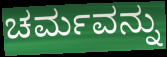
ಚರ್ಮವನ್ನು